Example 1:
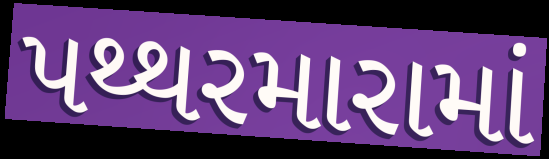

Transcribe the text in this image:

પથ્થરમારામાં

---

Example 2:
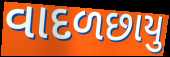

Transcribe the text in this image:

વાદળછાયુ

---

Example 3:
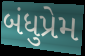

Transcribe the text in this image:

બંધુપ્રેમ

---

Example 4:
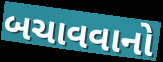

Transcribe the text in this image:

બચાવવાનો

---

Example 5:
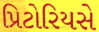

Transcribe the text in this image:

પ્રિટોરિયસે